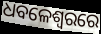
ଧବଳେଶ୍ଵରରେ